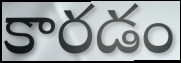
కారడం